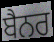
ਬੈਨਰ